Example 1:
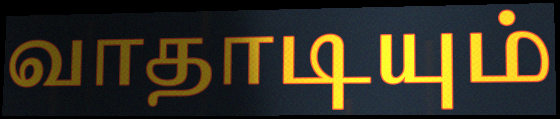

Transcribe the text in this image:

வாதாடியும்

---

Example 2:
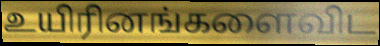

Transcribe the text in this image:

உயிரினங்களைவிட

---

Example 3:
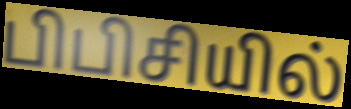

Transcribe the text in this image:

பிபிசியில்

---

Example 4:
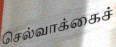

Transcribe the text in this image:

செல்வாக்கைச்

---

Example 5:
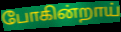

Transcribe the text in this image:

போகின்றாய்